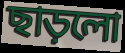
ছাড়লো